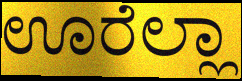
ಊರೆಲ್ಲಾ